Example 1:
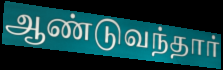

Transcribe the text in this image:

ஆண்டுவந்தார்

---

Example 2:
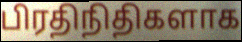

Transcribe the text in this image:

பிரதிநிதிகளாக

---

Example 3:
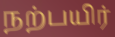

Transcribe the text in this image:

நற்பயிர்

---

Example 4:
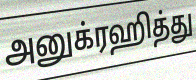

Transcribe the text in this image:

அனுக்ரஹித்து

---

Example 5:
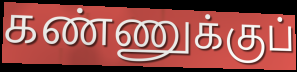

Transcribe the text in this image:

கண்ணுக்குப்